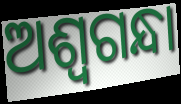
ଅଶ୍ୱଗନ୍ଧା